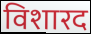
विशारद